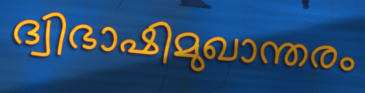
ദ്വിഭാഷിമുഖാന്തരം